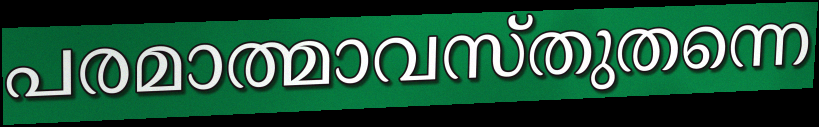
പരമാത്മാവസ്തുതന്നെ